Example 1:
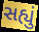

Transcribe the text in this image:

સહ્યું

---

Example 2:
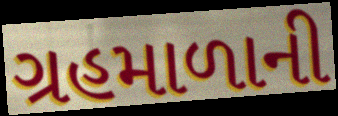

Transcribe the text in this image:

ગ્રહમાળાની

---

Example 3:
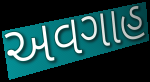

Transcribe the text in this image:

અવગાહ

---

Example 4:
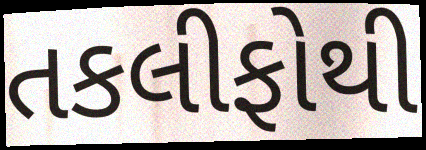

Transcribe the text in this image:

તકલીફોથી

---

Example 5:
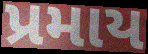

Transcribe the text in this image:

પ્રમાય